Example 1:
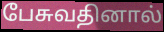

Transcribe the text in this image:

பேசுவதினால்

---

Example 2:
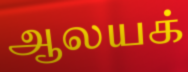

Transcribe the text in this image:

ஆலயக்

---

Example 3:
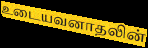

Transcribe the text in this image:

உடையவனாதலின்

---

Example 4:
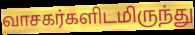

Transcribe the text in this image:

வாசகர்களிடமிருந்து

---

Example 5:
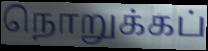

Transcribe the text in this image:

நொறுக்கப்